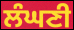
ਲੰਘਣੀ